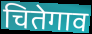
चितेगाव